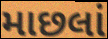
માછલાં